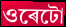
ওৰেটো